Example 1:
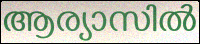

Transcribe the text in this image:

ആര്യാസിൽ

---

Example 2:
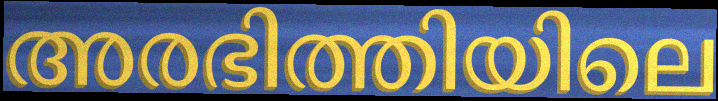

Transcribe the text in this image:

അരഭിത്തിയിലെ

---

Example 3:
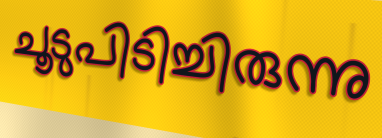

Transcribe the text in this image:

ചൂടുപിടിച്ചിരുന്നു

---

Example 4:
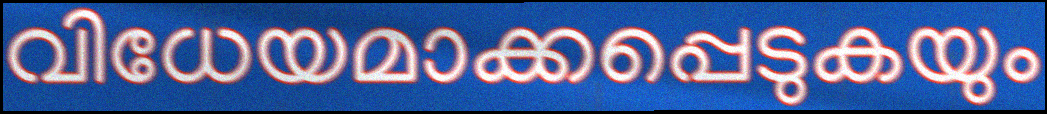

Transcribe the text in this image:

വിധേയമാക്കപ്പെടുകയും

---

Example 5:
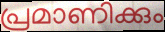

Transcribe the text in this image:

പ്രമാണിക്കും